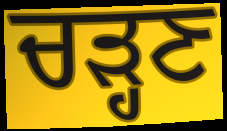
ਚੜ੍ਹਣ